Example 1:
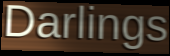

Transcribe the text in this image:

Darlings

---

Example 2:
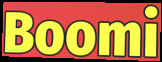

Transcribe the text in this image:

Boomi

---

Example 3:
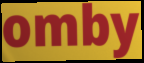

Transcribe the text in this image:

omby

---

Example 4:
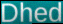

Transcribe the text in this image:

Dhed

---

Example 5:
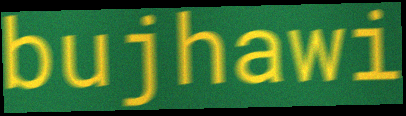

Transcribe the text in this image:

bujhawi